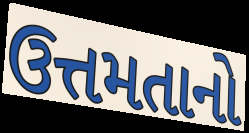
ઉત્તમતાનો